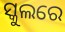
ସ୍କୁଲରେ